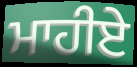
ਮਾਹੀਏ